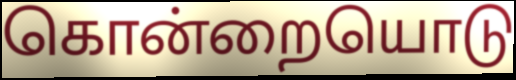
கொன்றையொடு